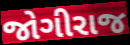
જોગીરાજ